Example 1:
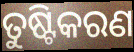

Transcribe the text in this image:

ତୁଷ୍ଟିକରଣ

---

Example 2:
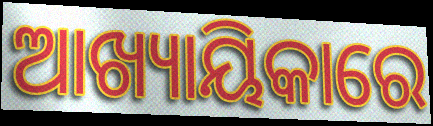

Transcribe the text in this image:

ଆଖ୍ୟାୟିକାରେ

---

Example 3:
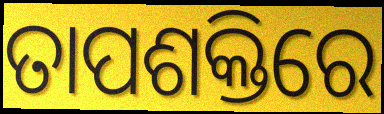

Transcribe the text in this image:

ତାପଶକ୍ତିରେ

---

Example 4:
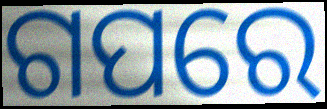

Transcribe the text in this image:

ଗପରେ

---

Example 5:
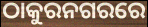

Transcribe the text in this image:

ଠାକୁରନଗରରେ